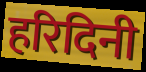
हरिदिनी